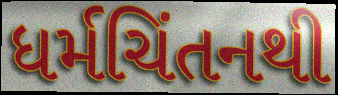
ધર્મચિંતનથી